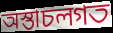
অস্তাচলগত